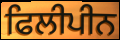
ਫਿਲੀਪੀਨ